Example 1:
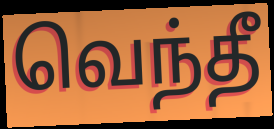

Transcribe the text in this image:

வெந்தீ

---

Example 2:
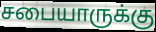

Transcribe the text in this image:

சபையாருக்கு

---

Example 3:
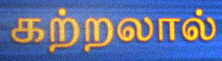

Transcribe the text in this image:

கற்றலால்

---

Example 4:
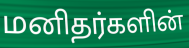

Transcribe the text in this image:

மனிதர்களின்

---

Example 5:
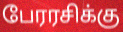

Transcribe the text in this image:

பேரரசிக்கு